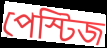
পেস্টিজ